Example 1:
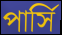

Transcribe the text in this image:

পার্সি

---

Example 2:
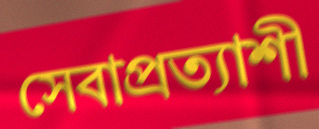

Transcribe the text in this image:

সেবাপ্রত্যাশী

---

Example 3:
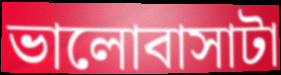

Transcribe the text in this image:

ভালোবাসাটা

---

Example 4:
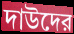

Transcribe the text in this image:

দাউদের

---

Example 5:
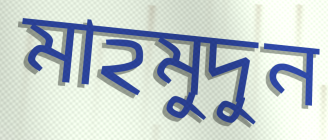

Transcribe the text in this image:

মাহমুদুন